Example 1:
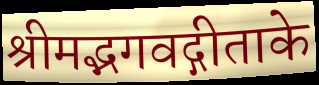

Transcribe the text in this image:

श्रीमद्भगवद्गीताके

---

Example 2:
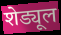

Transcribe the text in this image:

शेड्यूल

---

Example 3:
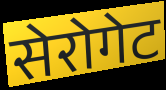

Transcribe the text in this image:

सेरोगेट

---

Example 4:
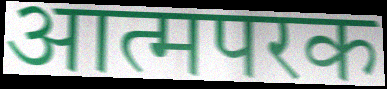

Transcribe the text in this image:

आत्मपरक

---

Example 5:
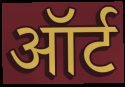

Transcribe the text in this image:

ऑर्ट